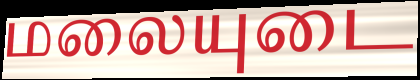
மலையுடை